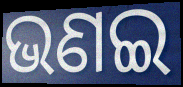
ଭଣଇ